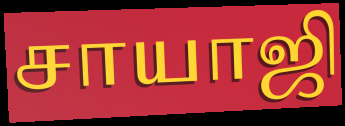
சாயாஜி